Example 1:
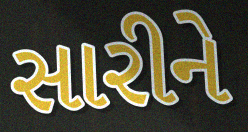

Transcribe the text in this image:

સારીને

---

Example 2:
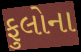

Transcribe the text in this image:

ફુલોના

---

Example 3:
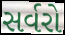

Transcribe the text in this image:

સર્વરો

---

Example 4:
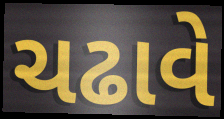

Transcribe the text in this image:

ચઢાવે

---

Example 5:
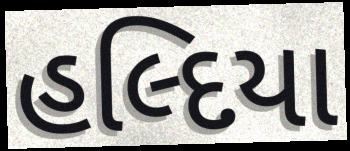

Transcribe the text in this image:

હલ્દિયા